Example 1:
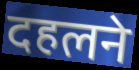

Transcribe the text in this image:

दहलने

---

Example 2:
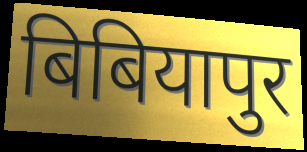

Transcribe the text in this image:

बिबियापुर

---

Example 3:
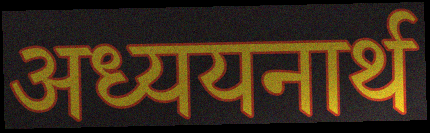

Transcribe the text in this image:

अध्ययनार्थ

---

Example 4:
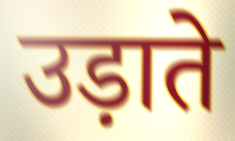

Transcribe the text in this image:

उड़ाते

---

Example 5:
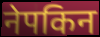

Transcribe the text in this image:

नेपकिन